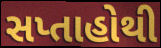
સપ્તાહોથી